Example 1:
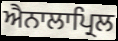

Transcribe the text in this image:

ਐਨਾਲਾਪ੍ਰਿਲ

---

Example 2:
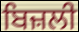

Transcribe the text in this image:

ਬਿਜ਼ਲੀ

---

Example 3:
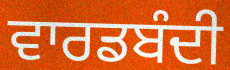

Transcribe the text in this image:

ਵਾਰਡਬੰਦੀ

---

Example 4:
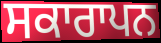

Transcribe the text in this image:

ਸਕਾਰਾਪਨ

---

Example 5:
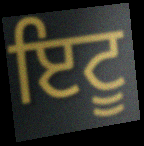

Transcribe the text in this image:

ਇਟੂ